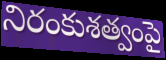
నిరంకుశత్వంపై